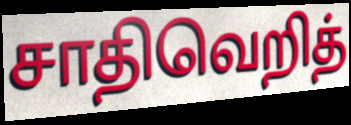
சாதிவெறித்